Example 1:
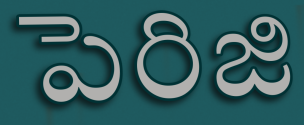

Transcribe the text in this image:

పెరిజి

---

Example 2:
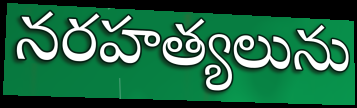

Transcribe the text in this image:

నరహత్యలును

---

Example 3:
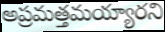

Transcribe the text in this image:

అప్రమత్తమయ్యారని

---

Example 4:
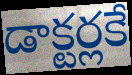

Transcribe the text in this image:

డాక్టర్లకే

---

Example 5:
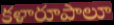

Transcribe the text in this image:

కళారూపాలూ